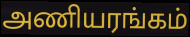
அணியரங்கம்